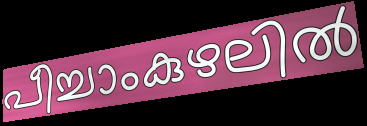
പീച്ചാംകുഴലിൽ